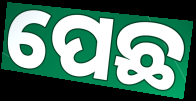
ପେଛ